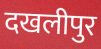
दखलीपुर